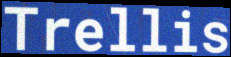
Trellis